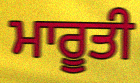
ਮਾਰੂਤੀ